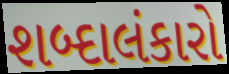
શબ્દાલંકારો